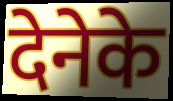
देनेके